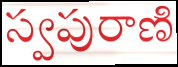
స్వపురాణి